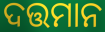
ଦତ୍ତମାନ